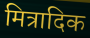
मित्रादिक